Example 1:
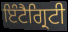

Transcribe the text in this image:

ਇੰਟੈਗ੍ਰਿਟੀ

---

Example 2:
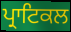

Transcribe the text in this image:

ਪ੍ਰਾਟਿਕਲ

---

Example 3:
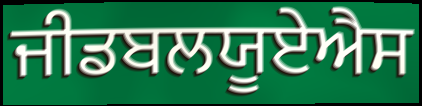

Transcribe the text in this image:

ਜੀਡਬਲਯੂਏਐਸ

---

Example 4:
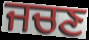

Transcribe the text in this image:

ਜਚਣ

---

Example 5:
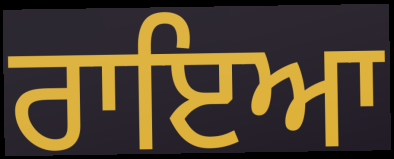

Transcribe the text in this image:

ਰਾਇਆ